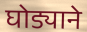
घोड्याने